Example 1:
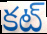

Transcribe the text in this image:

కట్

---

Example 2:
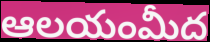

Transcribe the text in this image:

ఆలయంమీద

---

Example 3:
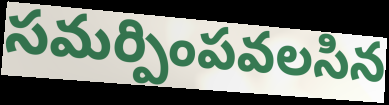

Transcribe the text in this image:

సమర్పింపవలసిన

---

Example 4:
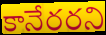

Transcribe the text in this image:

కానేరరని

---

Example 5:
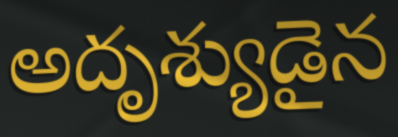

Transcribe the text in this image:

అదృశ్యుడైన